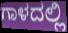
ಗಾಳದಲ್ಲಿ